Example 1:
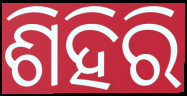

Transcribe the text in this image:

ଶିହିରି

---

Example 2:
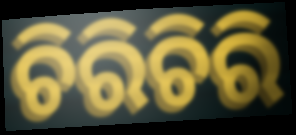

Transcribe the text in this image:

ଚିରିଚିରି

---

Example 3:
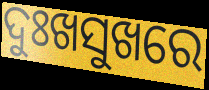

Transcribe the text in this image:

ଦୁଃଖସୁଖରେ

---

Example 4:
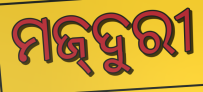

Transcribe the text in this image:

ମଜ୍‌ଦୁରୀ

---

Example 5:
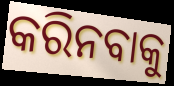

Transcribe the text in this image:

କରିନବାକୁ